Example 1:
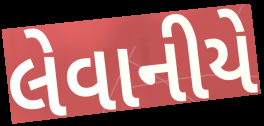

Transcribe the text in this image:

લેવાનીયે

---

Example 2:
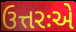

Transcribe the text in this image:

ઉત્તરઃએ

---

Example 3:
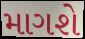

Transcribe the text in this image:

માગશે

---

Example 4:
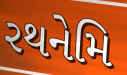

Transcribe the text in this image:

રથનેમિ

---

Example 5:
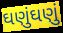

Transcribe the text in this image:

ઘણુંઘણું